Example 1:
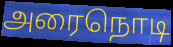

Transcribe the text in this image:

அரைநொடி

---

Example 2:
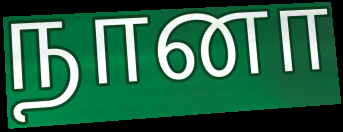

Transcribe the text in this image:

நானா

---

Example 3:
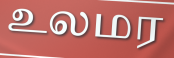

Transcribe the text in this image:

உலமர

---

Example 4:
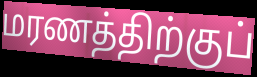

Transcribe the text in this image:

மரணத்திற்குப்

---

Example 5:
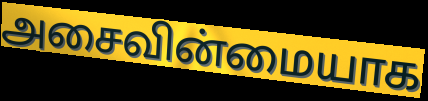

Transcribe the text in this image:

அசைவின்மையாக